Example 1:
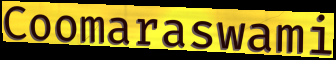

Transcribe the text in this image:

Coomaraswami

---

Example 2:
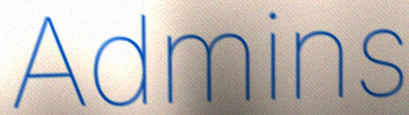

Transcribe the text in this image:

Admins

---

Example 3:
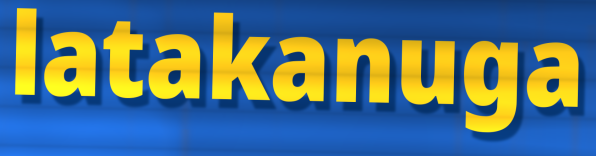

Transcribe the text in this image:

latakanuga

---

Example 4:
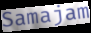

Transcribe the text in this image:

Samajam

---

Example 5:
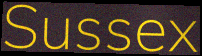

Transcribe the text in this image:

Sussex